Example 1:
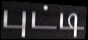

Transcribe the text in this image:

புட்டி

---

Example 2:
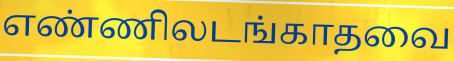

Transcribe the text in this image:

எண்ணிலடங்காதவை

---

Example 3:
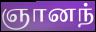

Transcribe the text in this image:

ஞானந்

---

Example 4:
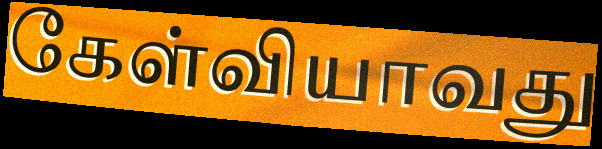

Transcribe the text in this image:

கேள்வியாவது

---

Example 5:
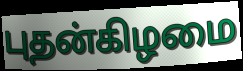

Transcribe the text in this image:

புதன்கிழமை